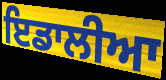
ਇਡਾਲੀਆ